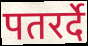
पतरर्दे